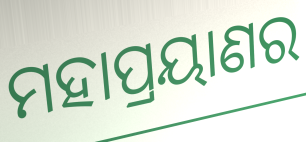
ମହାପ୍ରୟାଣର